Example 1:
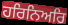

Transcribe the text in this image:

ਹਰਿਨਿਅਰਿ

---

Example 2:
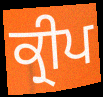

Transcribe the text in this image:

ਕ੍ਰੀਪ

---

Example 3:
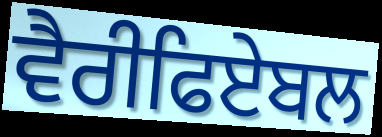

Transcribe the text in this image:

ਵੈਰੀਫਿਏਬਲ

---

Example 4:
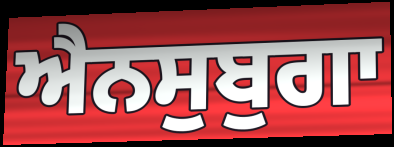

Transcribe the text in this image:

ਐਨਸੁਬੁਗਾ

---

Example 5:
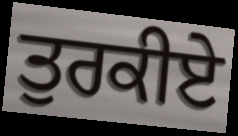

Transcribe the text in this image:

ਤੁਰਕੀਏ